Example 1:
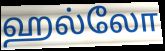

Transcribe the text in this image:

ஹல்லோ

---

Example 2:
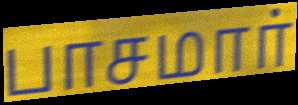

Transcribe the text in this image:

பாசமார்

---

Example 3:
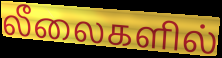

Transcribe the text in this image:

லீலைகளில்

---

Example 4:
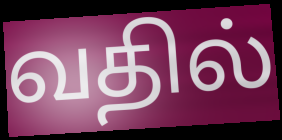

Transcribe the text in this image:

வதில்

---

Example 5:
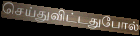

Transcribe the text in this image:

செய்துவிட்டதுபோல்